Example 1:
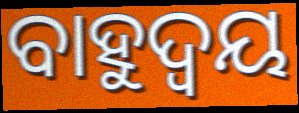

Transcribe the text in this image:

ବାହୁଦ୍ୱୟ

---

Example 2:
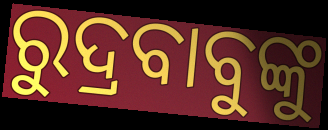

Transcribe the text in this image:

ରୁଦ୍ରବାବୁଙ୍କୁ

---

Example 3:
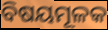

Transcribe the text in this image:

ବିଷୟମୂଳକ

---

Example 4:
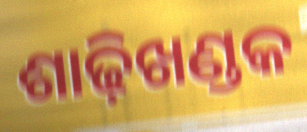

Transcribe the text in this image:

ଶାଢ଼ିଖଣ୍ଡକ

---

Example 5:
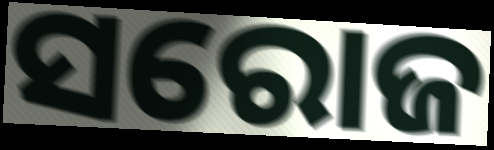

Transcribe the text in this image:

ସରୋଜ